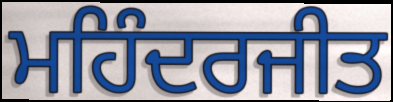
ਮਹਿੰਦਰਜੀਤ